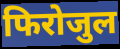
फिरोजुल